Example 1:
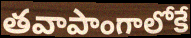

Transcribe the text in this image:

తవాపాంగాలోకే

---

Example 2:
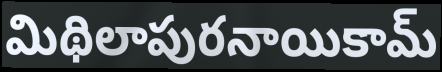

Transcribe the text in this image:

మిథిలాపురనాయికామ్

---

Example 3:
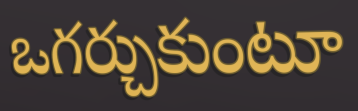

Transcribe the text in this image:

ఒగర్చుకుంటూ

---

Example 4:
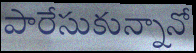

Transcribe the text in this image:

పారేసుకున్నానో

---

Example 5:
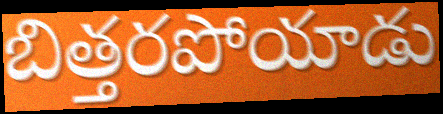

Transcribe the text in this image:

బిత్తరపోయాడు